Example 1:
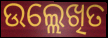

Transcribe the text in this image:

ଉଲ୍ଲେଖିତ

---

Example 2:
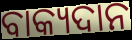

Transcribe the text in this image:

ବାକ୍ୟଦାନ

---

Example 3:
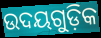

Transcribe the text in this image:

ଉଦୟଗୁଡ଼ିକ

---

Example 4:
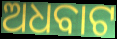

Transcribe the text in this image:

ଅଧବାଟ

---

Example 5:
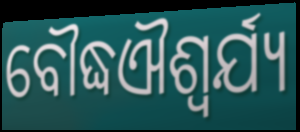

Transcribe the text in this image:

ବୌଦ୍ଧଐଶ୍ୱର୍ଯ୍ୟ